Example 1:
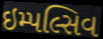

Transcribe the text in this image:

ઇમ્પલ્સિવ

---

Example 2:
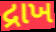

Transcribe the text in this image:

દ્રાખ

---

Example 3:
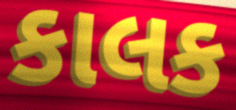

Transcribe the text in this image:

કાલક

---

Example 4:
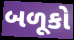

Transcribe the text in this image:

બળૂકો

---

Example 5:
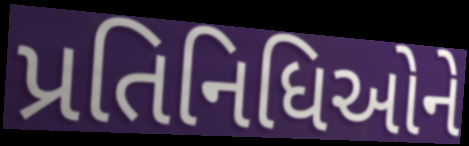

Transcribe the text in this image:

પ્રતિનિધિઓને